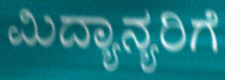
ಮಿದ್ಯಾನ್ಯರಿಗೆ